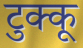
टुक्कू